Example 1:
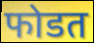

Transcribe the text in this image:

फोडत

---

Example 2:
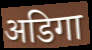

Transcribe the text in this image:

अडिगा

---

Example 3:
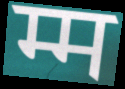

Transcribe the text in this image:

म्म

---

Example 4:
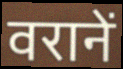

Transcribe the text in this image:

वरानें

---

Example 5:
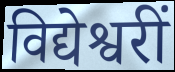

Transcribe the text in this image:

विद्येश्वरीं